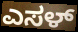
ಎಸಳ್